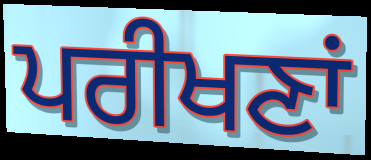
ਪਰੀਖਣਾਂ